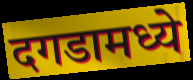
दगडामध्ये